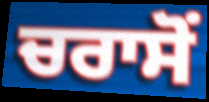
ਚਰਾਸੋਂ